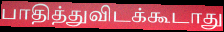
பாதித்துவிடக்கூடாது